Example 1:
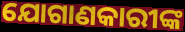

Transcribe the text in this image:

ଯୋଗାଣକାରୀଙ୍କ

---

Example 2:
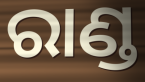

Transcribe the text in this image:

ରାଣ୍ଡ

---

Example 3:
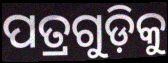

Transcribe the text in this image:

ପତ୍ରଗୁଡ଼ିକୁ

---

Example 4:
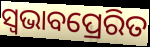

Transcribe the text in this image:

ସ୍ୱଭାବପ୍ରେରିତ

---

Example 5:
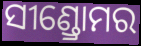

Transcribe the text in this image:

ସୀଣ୍ଡ୍ରୋମର